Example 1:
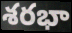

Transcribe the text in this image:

శరభా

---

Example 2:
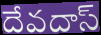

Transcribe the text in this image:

దేవదాస్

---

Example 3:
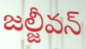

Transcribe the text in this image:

జల్జీవన్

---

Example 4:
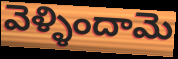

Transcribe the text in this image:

వెళ్ళిందామె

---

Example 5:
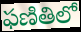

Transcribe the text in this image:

ఫణితిలో